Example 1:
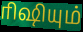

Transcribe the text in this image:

ரிஷியும்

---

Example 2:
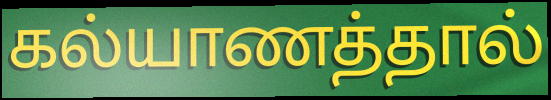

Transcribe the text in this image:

கல்யாணத்தால்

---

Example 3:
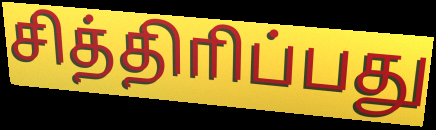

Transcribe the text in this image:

சித்திரிப்பது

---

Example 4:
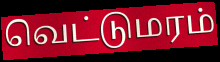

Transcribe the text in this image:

வெட்டுமரம்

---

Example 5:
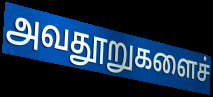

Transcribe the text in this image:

அவதூறுகளைச்